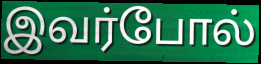
இவர்போல்